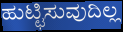
ಹುಟ್ಟಿಸುವುದಿಲ್ಲ